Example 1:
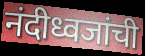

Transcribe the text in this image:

नंदीध्वजांची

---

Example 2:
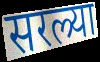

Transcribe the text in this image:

सरल्या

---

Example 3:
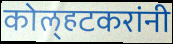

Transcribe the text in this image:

कोल्हटकरांनी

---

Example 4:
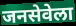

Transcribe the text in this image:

जनसेवेला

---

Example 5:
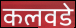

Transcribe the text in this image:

कलवडे